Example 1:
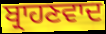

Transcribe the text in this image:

ਬ੍ਰਾਹਣਵਾਦ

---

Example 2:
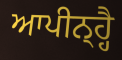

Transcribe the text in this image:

ਆਪੀਨ੍ਹ੍ਹੈ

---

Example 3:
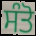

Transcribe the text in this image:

ਸੰਤੋ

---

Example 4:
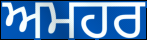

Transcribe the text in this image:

ਅਮਹਰ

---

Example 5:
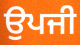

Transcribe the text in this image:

ਉਪਜੀ